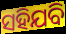
ସହିଯବି